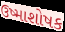
ઉષ્માશોષક